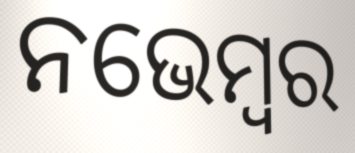
ନଭେମ୍ବର